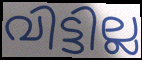
വിട്ടില്ല